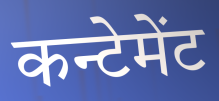
कन्टेमेंट